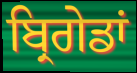
ਬ੍ਰਿਗੇਡਾਂ